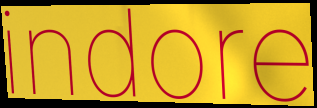
indore